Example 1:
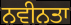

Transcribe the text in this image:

ਨਵੀਨਤਾ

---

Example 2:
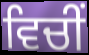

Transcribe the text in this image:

ਵਿਚੀਂ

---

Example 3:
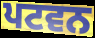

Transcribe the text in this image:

ਪਟਵਨ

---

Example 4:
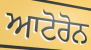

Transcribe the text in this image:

ਆਟੋਰੋਨ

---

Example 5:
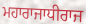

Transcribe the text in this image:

ਮਹਾਰਾਜਾਧੀਰਾਜ